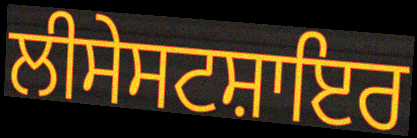
ਲੀਸੇਸਟਸ਼ਾਇਰ